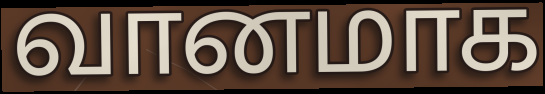
வானமாக